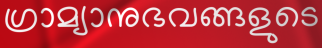
ഗ്രാമ്യാനുഭവങ്ങളുടെ